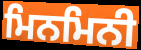
ਮਿਨਮਿਨੀ